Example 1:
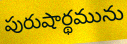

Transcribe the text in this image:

పురుషార్థమును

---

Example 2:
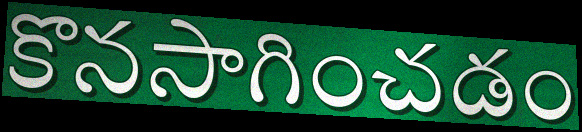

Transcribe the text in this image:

కొనసాగించడం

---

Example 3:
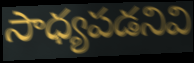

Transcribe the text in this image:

సాధ్యపడనివి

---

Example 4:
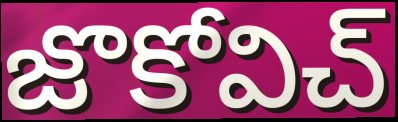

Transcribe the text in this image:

జొకోవిచ్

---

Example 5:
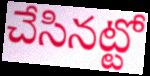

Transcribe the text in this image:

చేసినట్టో